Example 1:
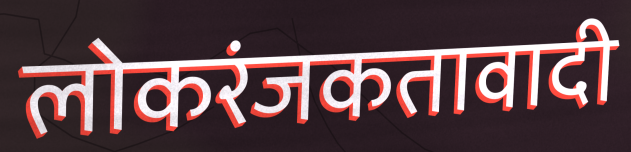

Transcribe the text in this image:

लोकरंजकतावादी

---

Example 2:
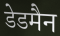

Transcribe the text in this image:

डेडमैन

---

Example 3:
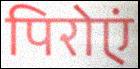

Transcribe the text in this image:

पिरोएं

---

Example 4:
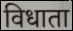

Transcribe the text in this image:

विधाता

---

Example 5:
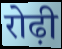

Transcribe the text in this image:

रोढ़ी